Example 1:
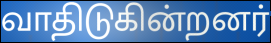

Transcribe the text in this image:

வாதிடுகின்றனர்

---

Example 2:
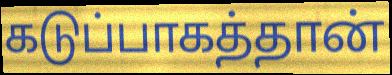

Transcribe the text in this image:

கடுப்பாகத்தான்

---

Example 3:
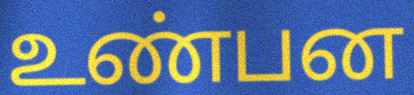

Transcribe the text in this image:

உண்பன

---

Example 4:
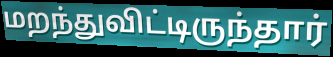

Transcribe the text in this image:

மறந்துவிட்டிருந்தார்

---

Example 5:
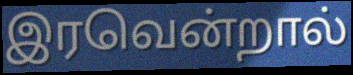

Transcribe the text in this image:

இரவென்றால்